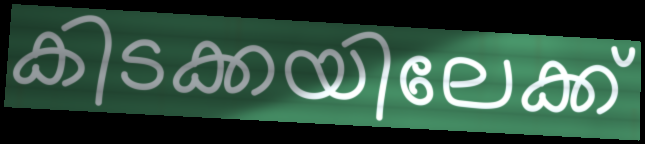
കിടക്കയിലേക്ക്